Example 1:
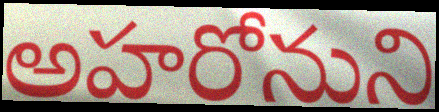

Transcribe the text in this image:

అహరోనుని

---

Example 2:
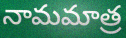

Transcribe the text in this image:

నామమాత్ర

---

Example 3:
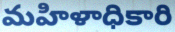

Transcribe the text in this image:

మహిళాధికారి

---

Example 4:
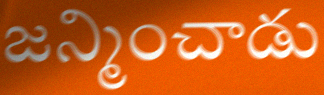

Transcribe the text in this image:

జన్మించాడు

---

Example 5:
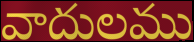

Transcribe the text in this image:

వాదులము